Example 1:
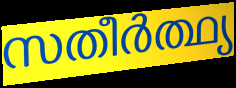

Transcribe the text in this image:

സതീർത്ഥ്യ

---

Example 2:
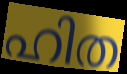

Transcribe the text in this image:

ഹിത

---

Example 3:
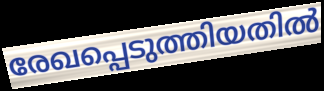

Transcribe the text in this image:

രേഖപ്പെടുത്തിയതിൽ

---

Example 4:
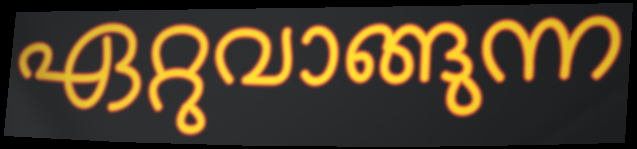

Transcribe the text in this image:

ഏറ്റുവാങ്ങുന്ന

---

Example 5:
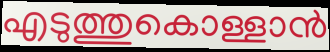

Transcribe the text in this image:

എടുത്തുകൊള്ളാൻ